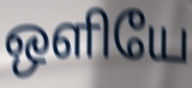
ஒளியே